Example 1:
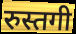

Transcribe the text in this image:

रुस्तगी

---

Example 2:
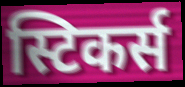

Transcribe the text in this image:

स्टिकर्स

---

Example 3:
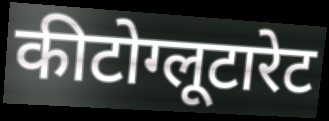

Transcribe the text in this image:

कीटोग्लूटारेट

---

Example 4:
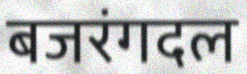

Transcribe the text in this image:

बजरंगदल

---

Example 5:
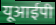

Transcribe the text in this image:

यूआईपी